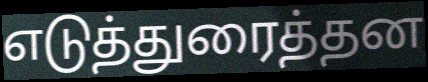
எடுத்துரைத்தன